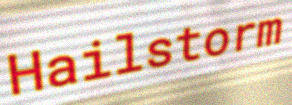
Hailstorm